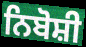
ਨਿਬੋਸ਼ੀ